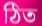
ঠিত